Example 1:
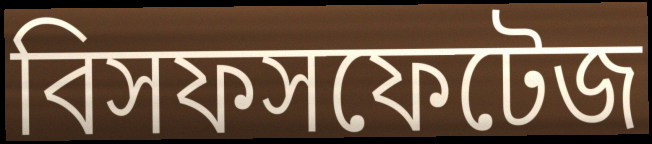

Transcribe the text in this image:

বিসফসফেটেজ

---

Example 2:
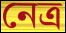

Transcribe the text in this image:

নেত্র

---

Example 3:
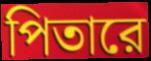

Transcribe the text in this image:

পিতারে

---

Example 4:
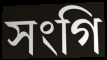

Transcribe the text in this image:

সংগি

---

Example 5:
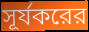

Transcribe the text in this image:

সূর্যকরের